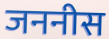
जननीस